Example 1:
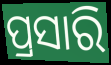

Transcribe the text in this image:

ପ୍ରସାରି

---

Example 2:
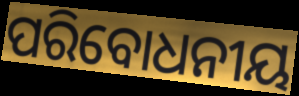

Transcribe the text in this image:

ପରିବୋଧନୀୟ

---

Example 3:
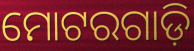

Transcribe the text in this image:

ମୋଟରଗାଡ଼ି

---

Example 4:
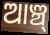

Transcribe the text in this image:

ଆଞ୍ଚ୍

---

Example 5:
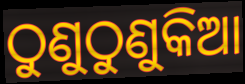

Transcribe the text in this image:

ଠୁଣୁଠୁଣୁକିଆ